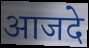
आजदे